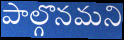
పాల్గొనమని